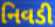
નિવડી